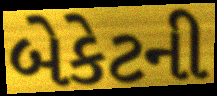
બેકેટની